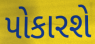
પોકારશે